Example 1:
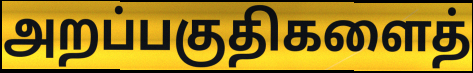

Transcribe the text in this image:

அறப்பகுதிகளைத்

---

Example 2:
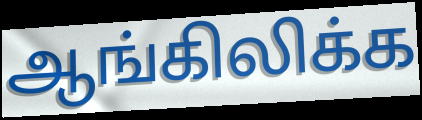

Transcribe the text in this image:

ஆங்கிலிக்க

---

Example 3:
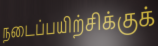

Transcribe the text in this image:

நடைப்பயிற்சிக்குக்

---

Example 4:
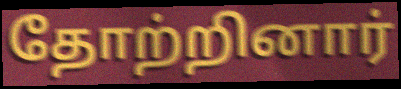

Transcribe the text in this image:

தோற்றினார்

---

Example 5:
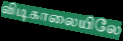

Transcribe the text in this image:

விடிகாலையிலே